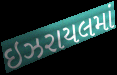
ઇઝરાયલમાં